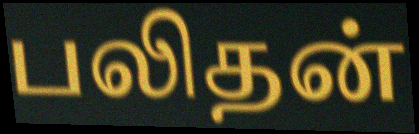
பலிதன்